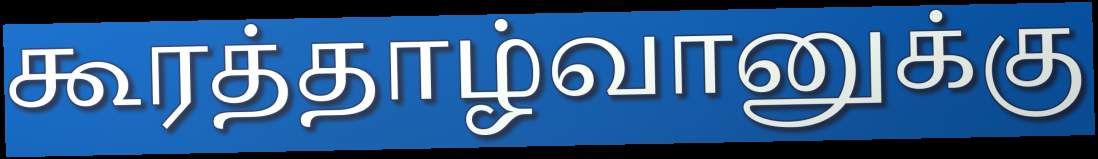
கூரத்தாழ்வானுக்கு